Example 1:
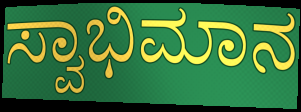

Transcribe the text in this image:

ಸ್ವಾಭಿಮಾನ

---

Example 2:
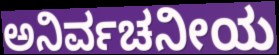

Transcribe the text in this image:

ಅನಿರ್ವಚನೀಯ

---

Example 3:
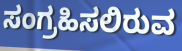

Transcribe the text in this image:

ಸಂಗ್ರಹಿಸಲಿರುವ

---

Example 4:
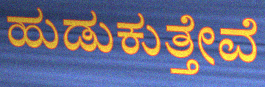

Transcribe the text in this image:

ಹುಡುಕುತ್ತೇವೆ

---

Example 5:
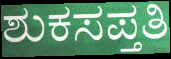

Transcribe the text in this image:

ಶುಕಸಪ್ತತಿ